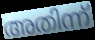
അതിന്ന്